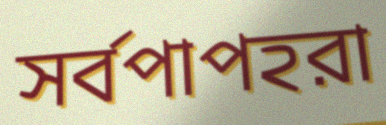
সর্বপাপহরা